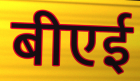
बीएई